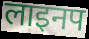
लाइनप